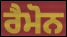
ਰੈਮੋਨ